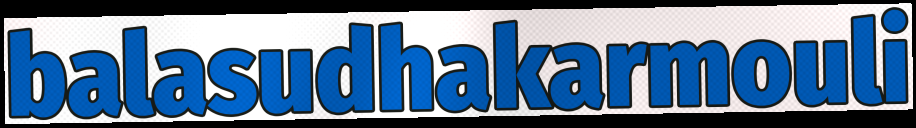
balasudhakarmouli